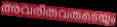
അവരിരുവരുടെയും